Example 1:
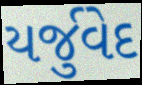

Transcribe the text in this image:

યર્જુવેદ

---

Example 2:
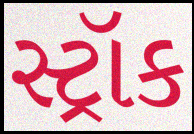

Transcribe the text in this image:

સ્ટ્રૉક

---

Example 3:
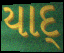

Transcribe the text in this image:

યાદ્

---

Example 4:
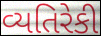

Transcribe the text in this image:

વ્યતિરેકી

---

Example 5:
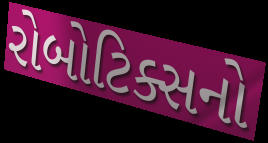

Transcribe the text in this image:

રોબોટિક્સનો